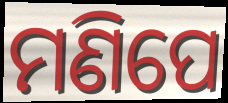
ମଣିପେ